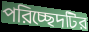
পরিচ্ছেদটির